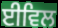
ਈਵਿਲ